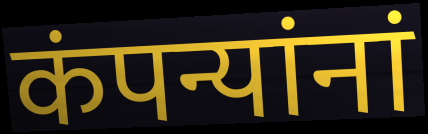
कंपन्यांनां